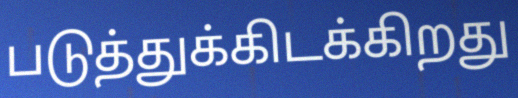
படுத்துக்கிடக்கிறது